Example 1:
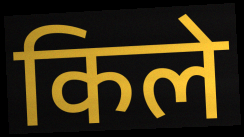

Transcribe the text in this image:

किले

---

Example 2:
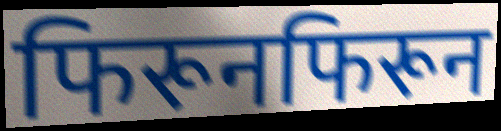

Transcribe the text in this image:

फिरूनफिरून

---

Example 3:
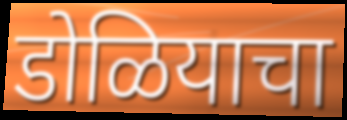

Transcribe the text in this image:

डोळियाचा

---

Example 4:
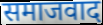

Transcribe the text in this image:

समाजवाद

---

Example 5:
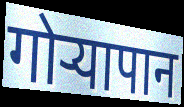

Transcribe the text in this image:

गोऱ्यापान